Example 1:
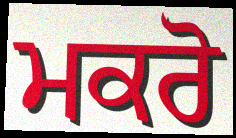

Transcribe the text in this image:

ਮਕਰੋ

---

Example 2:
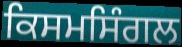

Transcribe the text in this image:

ਕਿਸਮਸਿੰਗਲ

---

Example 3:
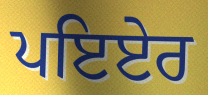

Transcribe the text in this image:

ਪਇਏਰ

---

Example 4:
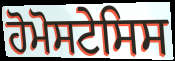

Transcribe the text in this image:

ਹੋਮੋਸਟੇਸਿਸ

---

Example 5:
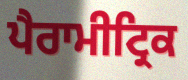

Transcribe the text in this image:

ਪੈਰਾਮੀਟ੍ਰਿਕ